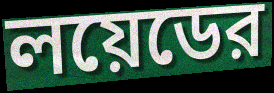
লয়েডের